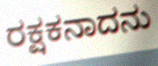
ರಕ್ಷಕನಾದನು